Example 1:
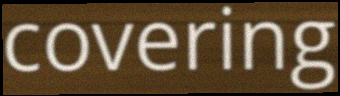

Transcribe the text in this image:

covering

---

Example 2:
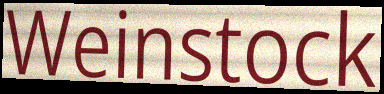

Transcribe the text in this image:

Weinstock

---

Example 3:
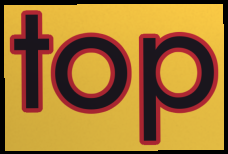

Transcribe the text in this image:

top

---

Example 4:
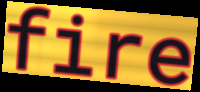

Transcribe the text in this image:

fire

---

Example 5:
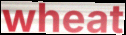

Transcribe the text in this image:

wheat